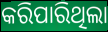
କରିପାରିଥିଲା